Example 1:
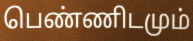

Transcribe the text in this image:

பெண்ணிடமும்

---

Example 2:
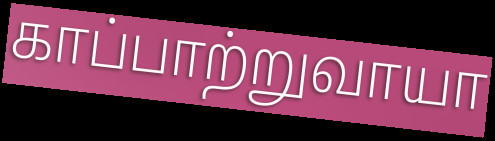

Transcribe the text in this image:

காப்பாற்றுவாயா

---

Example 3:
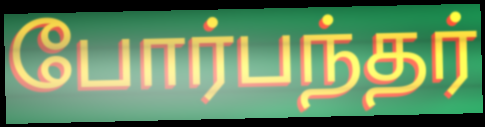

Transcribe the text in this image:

போர்பந்தர்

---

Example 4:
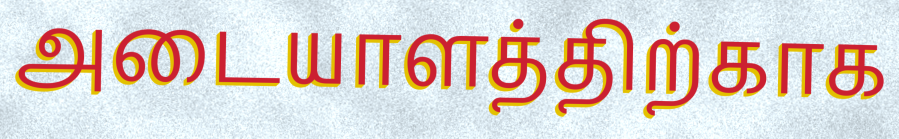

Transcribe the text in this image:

அடையாளத்திற்காக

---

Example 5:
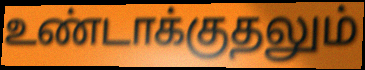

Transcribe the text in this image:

உண்டாக்குதலும்